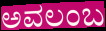
ಅವಲಂಬ